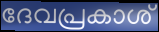
ദേവപ്രകാശ്